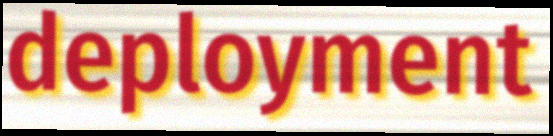
deployment